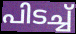
പിടച്ച്